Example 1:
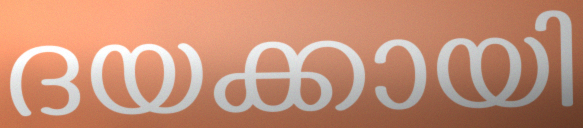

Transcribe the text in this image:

ദയക്കായി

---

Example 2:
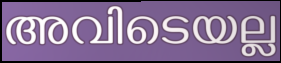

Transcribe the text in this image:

അവിടെയല്ല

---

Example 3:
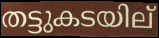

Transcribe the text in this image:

തട്ടുകടയില്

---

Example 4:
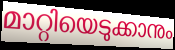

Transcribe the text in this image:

മാറ്റിയെടുക്കാനും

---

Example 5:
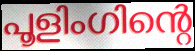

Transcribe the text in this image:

പൂളിംഗിന്റെ